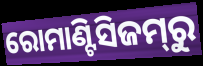
ରୋମାଣ୍ଟିସିଜମ୍‌ରୁ